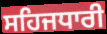
ਸਹਿਜਧਾਰੀ